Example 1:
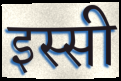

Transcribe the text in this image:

इस्सी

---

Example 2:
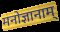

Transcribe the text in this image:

मनोज्ञानाम्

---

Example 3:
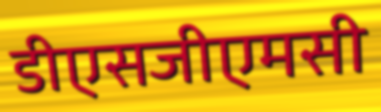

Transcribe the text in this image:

डीएसजीएमसी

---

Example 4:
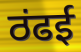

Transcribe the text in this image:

ठंढई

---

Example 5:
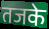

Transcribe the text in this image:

तजके